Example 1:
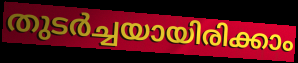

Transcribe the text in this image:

തുടർച്ചയായിരിക്കാം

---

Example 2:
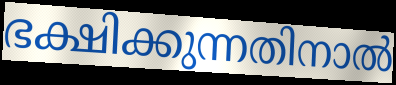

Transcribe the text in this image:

ഭക്ഷിക്കുന്നതിനാൽ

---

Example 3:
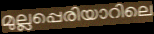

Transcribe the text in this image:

മുല്ലപ്പെരിയാറിലെ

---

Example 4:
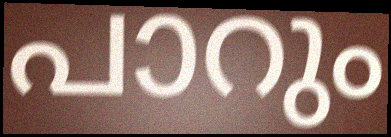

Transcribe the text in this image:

പാറും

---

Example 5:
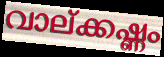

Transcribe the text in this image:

വാല്ക്കഷ്ണം